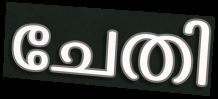
ചേതി